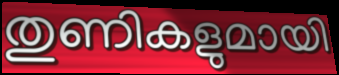
തുണികളുമായി